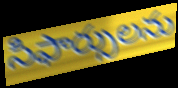
సిఫార్సులను